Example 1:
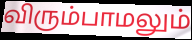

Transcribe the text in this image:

விரும்பாமலும்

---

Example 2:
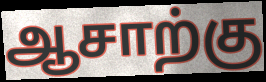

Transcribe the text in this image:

ஆசாற்கு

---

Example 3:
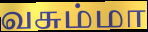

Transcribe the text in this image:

வசும்மா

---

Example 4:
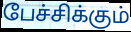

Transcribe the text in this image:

பேச்சிக்கும்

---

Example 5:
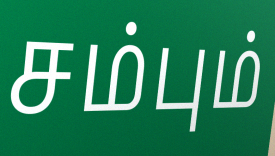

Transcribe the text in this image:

சம்பும்